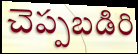
చెప్పబడిరి